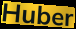
Huber